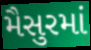
મૈસુરમાં